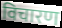
विचारण